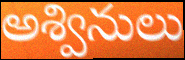
అశ్వినులు